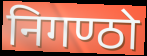
निगण्ठो